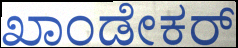
ಖಾಂಡೇಕರ್